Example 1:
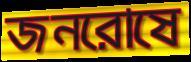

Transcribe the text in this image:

জনরোষে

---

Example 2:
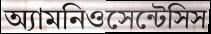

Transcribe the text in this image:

অ্যামনিওসেন্টেসিস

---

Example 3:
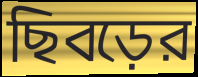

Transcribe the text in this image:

ছিবড়ের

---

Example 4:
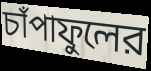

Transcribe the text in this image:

চাঁপাফুলের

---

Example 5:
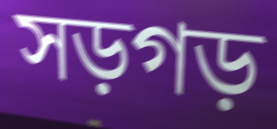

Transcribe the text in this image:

সড়গড়